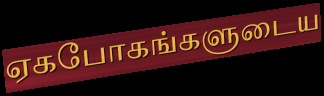
ஏகபோகங்களுடைய